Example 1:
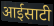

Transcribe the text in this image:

आईसाटी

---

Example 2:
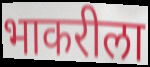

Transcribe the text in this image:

भाकरीला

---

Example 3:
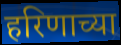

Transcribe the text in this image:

हरिणाच्या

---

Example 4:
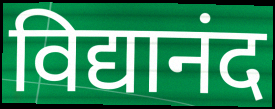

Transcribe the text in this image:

विद्यानंद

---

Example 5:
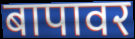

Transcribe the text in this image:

बापावर